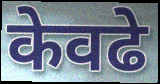
केवढे